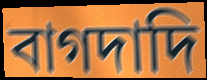
বাগদাদি